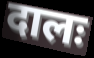
दालः